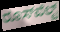
ರೂಸ್‌ವೆಲ್ಟ್